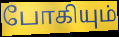
போகியும்